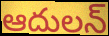
ఆదులన్